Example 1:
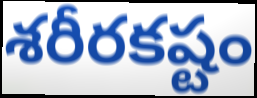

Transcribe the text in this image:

శరీరకష్టం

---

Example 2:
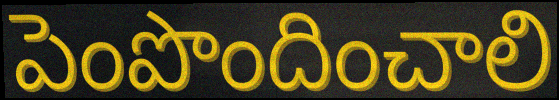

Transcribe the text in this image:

పెంపొందించాలి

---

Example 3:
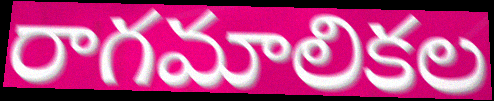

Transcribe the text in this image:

రాగమాలికల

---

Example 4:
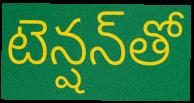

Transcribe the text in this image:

టెన్షన్‌తో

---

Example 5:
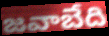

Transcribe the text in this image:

జవాబేది